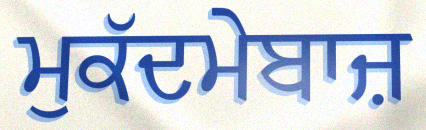
ਮੁਕੱਦਮੇਬਾਜ਼